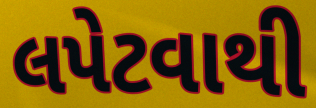
લપેટવાથી